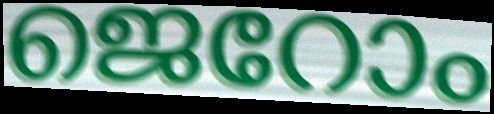
ജെറോം